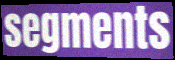
segments